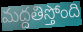
మద్దతిస్తోంది